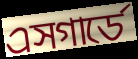
এসগার্ডে